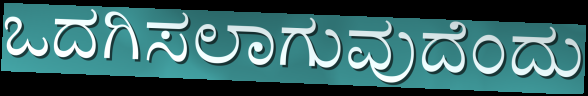
ಒದಗಿಸಲಾಗುವುದೆಂದು